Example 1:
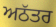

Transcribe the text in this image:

ਅਠੱਤਰ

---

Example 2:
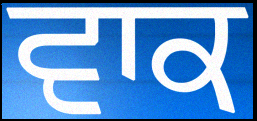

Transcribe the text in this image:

ਵਾਕ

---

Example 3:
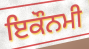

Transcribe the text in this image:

ਇਕੌਨਮੀ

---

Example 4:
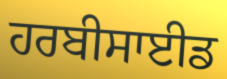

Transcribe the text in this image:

ਹਰਬੀਸਾਈਡ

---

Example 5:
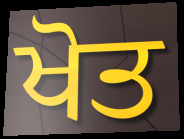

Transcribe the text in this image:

ਖੋਤ